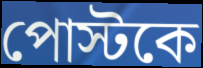
পোস্টকে